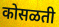
कोसळती